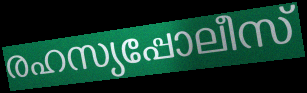
രഹസ്യപ്പോലീസ്